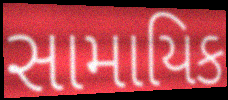
સામાયિક